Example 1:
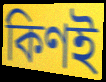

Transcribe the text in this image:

কিণই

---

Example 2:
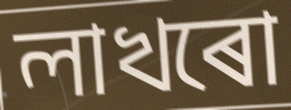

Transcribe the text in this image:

লাখৰো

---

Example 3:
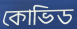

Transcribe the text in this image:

কোভিড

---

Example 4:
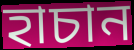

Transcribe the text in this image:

হাচান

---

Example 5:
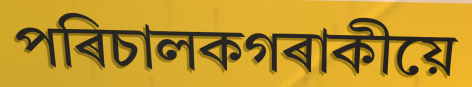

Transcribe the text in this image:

পৰিচালকগৰাকীয়ে